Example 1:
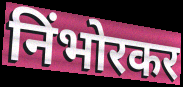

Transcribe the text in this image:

निंभोरकर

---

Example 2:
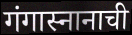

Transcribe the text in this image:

गंगास्नानाची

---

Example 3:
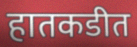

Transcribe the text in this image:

हातकडीत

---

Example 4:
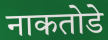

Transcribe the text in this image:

नाकतोडे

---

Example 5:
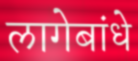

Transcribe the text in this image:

लागेबांधे